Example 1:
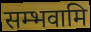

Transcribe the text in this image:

सम्भवामि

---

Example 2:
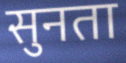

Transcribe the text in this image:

सुनता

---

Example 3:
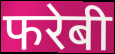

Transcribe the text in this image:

फरेबी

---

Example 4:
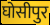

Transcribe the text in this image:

घोसीपुर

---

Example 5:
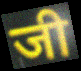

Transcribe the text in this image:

जी